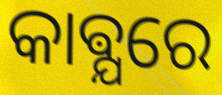
କାଵ୍ଯରେ